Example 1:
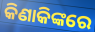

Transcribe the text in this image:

କିଣାକିଙ୍କରେ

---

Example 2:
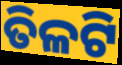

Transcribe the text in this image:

ତିଳଟି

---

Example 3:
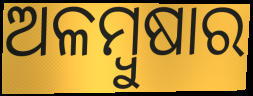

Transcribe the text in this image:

ଅଳମ୍ବୁଷାର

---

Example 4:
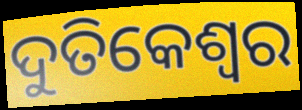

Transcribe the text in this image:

ଦୁତିକେଶ୍ୱର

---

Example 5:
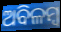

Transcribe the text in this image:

ଅବିଳମ୍ବ